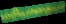
மரியாதையா